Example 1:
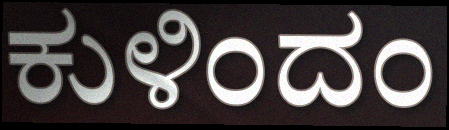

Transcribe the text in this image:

ಕುಳಿಂದಂ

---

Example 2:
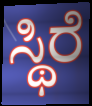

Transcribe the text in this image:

ಸ್ಥಿರೆ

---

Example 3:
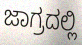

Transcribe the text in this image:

ಜಾಗ್ರದಲ್ಲಿ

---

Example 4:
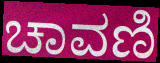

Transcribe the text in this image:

ಚಾವಣಿ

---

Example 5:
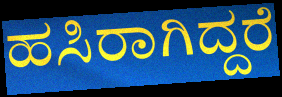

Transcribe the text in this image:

ಹಸಿರಾಗಿದ್ದರೆ